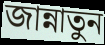
জান্নাতুন